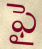
ఫై